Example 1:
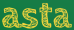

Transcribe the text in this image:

asta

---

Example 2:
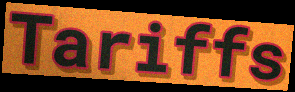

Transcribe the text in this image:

Tariffs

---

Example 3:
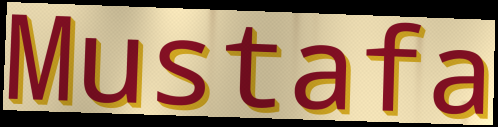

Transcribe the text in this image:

Mustafa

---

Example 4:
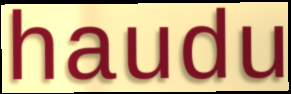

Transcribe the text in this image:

haudu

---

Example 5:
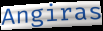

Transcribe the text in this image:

Angiras